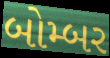
બોમ્બર